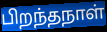
பிறந்தநாள்